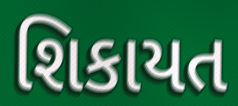
શિકાયત